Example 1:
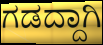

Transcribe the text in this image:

ಗಡದ್ದಾಗಿ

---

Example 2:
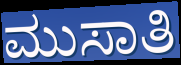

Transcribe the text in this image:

ಮುಸಾತಿ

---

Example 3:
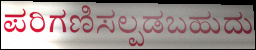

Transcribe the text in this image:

ಪರಿಗಣಿಸಲ್ಪಡಬಹುದು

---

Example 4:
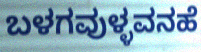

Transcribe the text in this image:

ಬಳಗವುಳ್ಳವನಹೆ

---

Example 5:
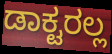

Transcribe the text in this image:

ಡಾಕ್ಟರಲ್ಲ